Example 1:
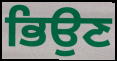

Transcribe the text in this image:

ਭਿਉਣ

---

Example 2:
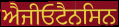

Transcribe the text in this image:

ਐਜੀਓਟੈਨਸਿਨ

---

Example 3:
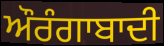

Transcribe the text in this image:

ਔਰੰਗਾਬਾਦੀ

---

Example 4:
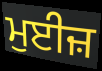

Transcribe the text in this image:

ਮੁਈਜ਼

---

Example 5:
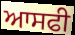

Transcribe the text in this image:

ਆਸਫੀ